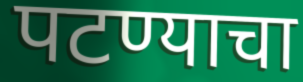
पटण्याचा